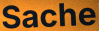
Sache